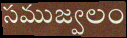
సముజ్వలం